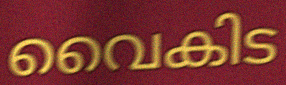
വൈകിട